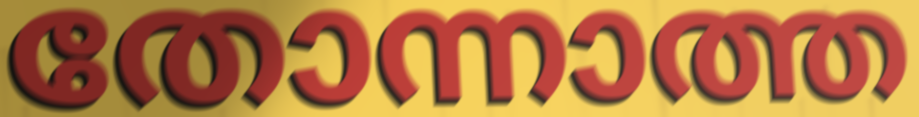
തോന്നാത്ത